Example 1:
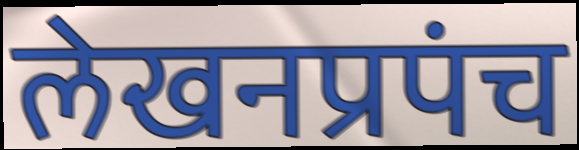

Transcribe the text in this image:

लेखनप्रपंच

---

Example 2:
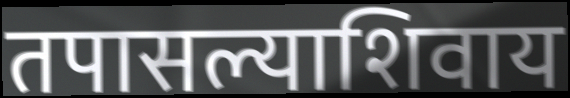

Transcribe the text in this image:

तपासल्याशिवाय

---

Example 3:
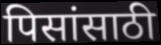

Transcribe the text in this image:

पिसांसाठी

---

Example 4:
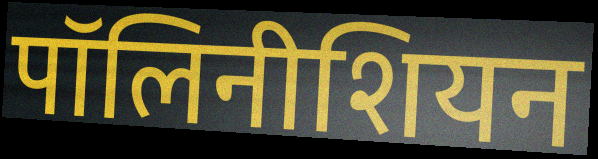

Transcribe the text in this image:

पॉलिनीशियन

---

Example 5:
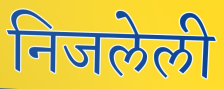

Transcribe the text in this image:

निजलेली